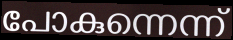
പോകുന്നെന്ന്